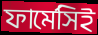
ফার্মেসিই